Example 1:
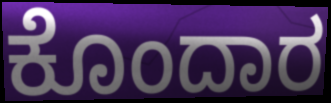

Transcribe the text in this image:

ಕೊಂದಾರ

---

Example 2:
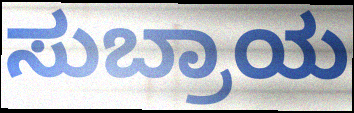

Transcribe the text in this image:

ಸುಬ್ರಾಯ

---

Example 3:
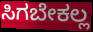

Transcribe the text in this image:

ಸಿಗಬೇಕಲ್ಲ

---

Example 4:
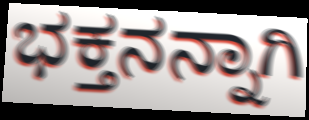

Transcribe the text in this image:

ಭಕ್ತನನ್ನಾಗಿ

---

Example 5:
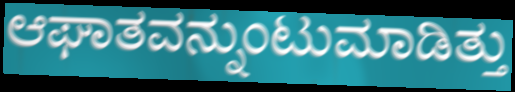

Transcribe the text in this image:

ಆಘಾತವನ್ನುಂಟುಮಾಡಿತ್ತು